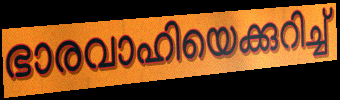
ഭാരവാഹിയെക്കുറിച്ച്